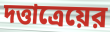
দত্তাত্রেয়ের